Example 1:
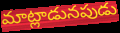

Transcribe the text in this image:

మాట్లాడునపుడు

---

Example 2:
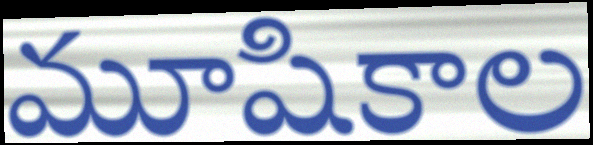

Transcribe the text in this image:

మూషికాల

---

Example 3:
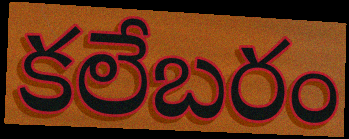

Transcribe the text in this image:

కలేబరం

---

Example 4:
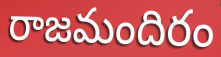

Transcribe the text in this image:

రాజమందిరం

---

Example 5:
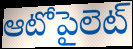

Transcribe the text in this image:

ఆటోపైలెట్